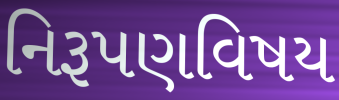
નિરૂપણવિષય